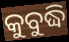
କୁବୁଦ୍ଧି